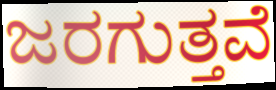
ಜರಗುತ್ತವೆ